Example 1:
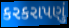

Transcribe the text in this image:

કરકરાપણું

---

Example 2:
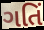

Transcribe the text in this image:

ગતિં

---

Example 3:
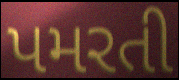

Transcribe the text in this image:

પમરતી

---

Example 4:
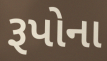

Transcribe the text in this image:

રૂપોના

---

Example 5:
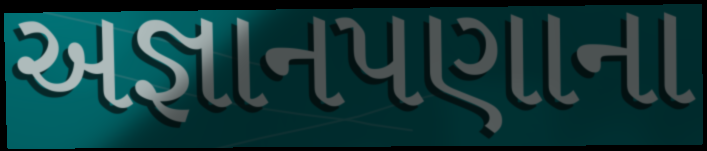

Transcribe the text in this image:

અજ્ઞાનપણાના